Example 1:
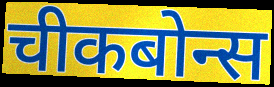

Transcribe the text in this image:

चीकबोन्स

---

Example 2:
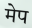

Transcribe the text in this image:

मेप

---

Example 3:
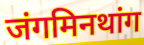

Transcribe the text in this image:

जंगमिनथांग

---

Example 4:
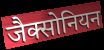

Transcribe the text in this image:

जैक्सोनियन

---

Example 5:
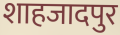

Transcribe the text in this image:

शाहजादपुर